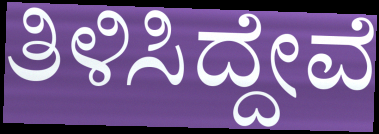
ತಿಳಿಸಿದ್ದೇವೆ